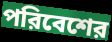
পরিবেশের